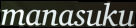
manasuku